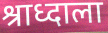
श्राध्दाला